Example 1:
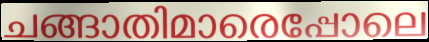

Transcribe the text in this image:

ചങ്ങാതിമാരെപ്പോലെ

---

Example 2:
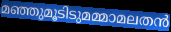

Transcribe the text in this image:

മഞ്ഞുമൂടിടുമമ്മാമലതൻ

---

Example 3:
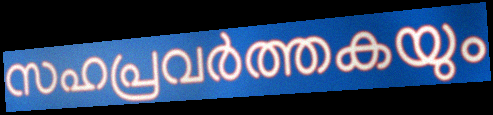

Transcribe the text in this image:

സഹപ്രവർത്തകയും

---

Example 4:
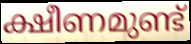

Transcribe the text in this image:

ക്ഷീണമുണ്ട്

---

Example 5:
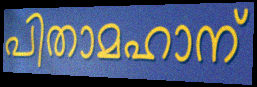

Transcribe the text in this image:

പിതാമഹാന്